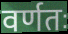
वर्णतः